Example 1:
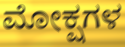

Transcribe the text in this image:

ಮೋಕ್ಷಗಳ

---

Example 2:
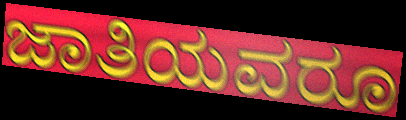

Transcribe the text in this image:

ಜಾತಿಯವರೂ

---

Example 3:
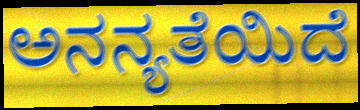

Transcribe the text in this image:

ಅನನ್ಯತೆಯಿದೆ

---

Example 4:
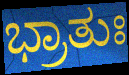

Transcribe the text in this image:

ಭ್ರಾತುಃ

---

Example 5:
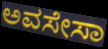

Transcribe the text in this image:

ಅವಸೇಸಾ